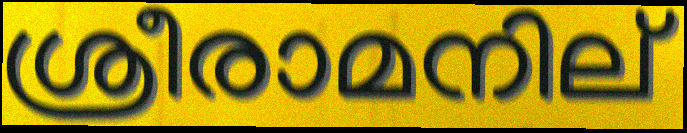
ശ്രീരാമനില്